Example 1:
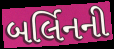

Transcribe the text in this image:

બર્લિનની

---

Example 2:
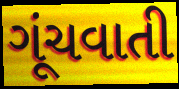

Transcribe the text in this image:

ગૂંચવાતી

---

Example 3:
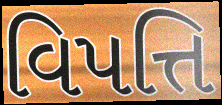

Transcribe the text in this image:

વિપત્તિ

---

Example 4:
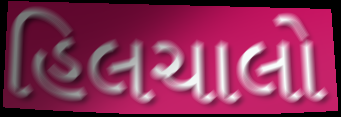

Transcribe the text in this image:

હિલચાલો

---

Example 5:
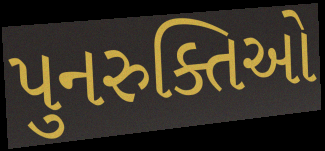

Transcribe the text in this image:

પુનરુક્તિઓ